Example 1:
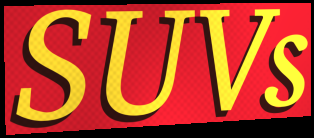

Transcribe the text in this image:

SUVs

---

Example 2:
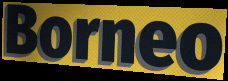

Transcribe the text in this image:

Borneo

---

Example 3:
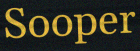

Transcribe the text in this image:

Sooper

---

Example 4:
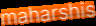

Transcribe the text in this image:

maharshis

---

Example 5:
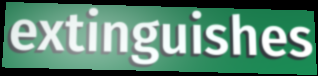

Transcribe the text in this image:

extinguishes